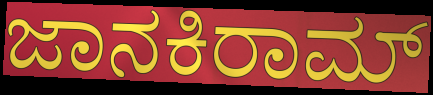
ಜಾನಕಿರಾಮ್